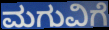
ಮಗುವಿಗೆ